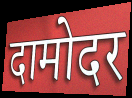
दामोदर